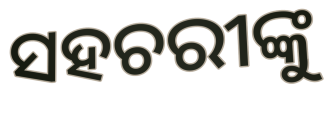
ସହଚରୀଙ୍କୁ